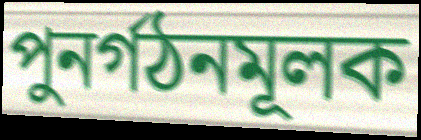
পুনর্গঠনমূলক